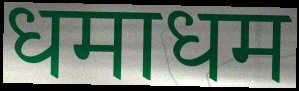
धमाधम